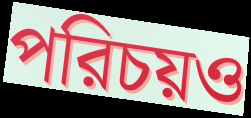
পরিচয়ও